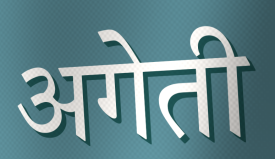
अगेती